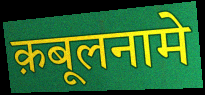
क़बूलनामे